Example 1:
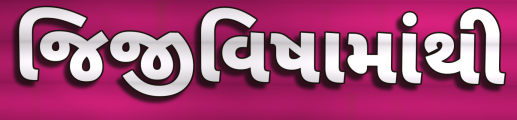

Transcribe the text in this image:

જિજીવિષામાંથી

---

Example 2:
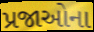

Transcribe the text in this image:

પ્રજાઓના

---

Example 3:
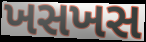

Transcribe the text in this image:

ખસખસ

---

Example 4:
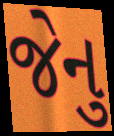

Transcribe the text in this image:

જેનુ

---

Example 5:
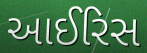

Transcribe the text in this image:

આઈરિસ